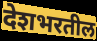
देशभरतील